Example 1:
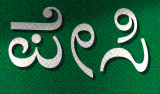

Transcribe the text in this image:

ಪೇಸಿ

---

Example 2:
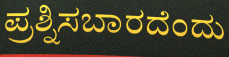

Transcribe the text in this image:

ಪ್ರಶ್ನಿಸಬಾರದೆಂದು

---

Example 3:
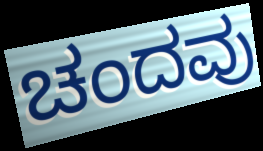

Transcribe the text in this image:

ಚಂದವು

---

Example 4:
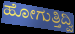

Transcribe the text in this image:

ಹೋಗುತ್ತಿದ್ವಿ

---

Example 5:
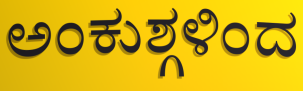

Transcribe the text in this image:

ಅಂಕುಶ್ಗಳಿಂದ